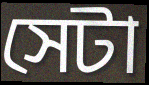
সেটা